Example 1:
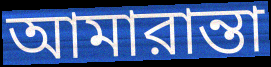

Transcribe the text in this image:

আমারান্তা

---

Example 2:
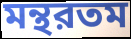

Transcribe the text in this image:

মন্থরতম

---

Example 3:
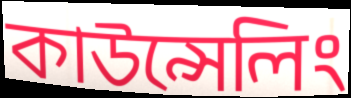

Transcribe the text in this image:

কাউন্সেলিং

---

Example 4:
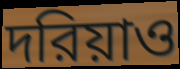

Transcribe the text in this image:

দরিয়াও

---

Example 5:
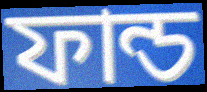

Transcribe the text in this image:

ফান্ড